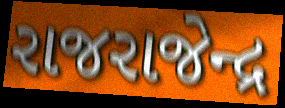
રાજરાજેન્દ્ર